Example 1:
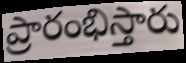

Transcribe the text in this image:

ప్రారంభిస్తారు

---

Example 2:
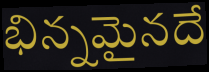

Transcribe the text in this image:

భిన్నమైనదే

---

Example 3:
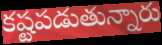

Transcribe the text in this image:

కష్టపడుతున్నారు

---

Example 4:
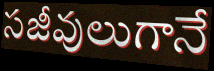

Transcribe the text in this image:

సజీవులుగానే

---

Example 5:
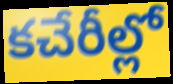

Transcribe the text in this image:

కచేరీల్లో